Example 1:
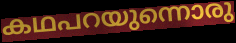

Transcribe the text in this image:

കഥപറയുന്നൊരു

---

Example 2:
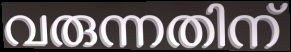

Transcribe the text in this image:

വരുന്നതിന്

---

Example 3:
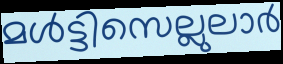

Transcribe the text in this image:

മൾട്ടിസെല്ലുലാർ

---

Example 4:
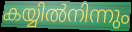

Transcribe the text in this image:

കയ്യിൽനിന്നും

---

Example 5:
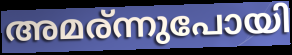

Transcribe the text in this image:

അമര്ന്നുപോയി